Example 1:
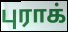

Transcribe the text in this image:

புராக்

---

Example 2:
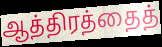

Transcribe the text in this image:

ஆத்திரத்தைத்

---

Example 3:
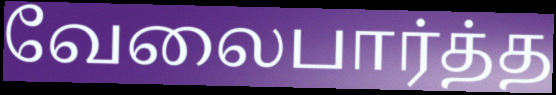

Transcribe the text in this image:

வேலைபார்த்த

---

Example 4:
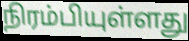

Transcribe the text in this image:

நிரம்பியுள்ளது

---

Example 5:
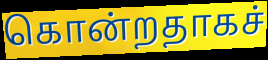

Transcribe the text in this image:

கொன்றதாகச்